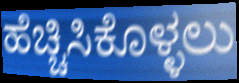
ಹೆಚ್ಚಿಸಿಕೊಳ್ಳಲು